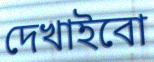
দেখাইবো